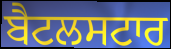
ਬੈਟਲਸਟਾਰ